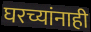
घरच्यांनाही